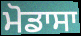
ਮੋਡਾਸਾ